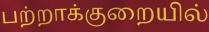
பற்றாக்குறையில்